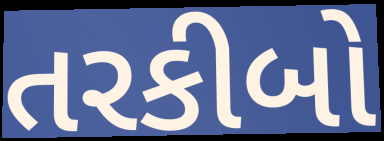
તરકીબો